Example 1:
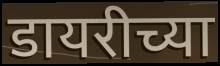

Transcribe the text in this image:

डायरीच्या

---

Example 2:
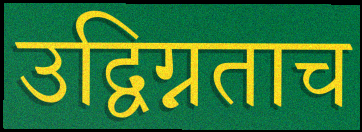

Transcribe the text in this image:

उद्विग्नताच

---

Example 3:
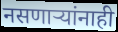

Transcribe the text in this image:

नसणार्‍यांनाही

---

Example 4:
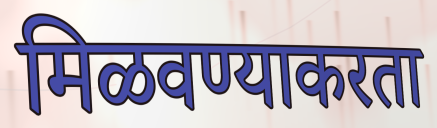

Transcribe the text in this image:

मिळवण्याकरता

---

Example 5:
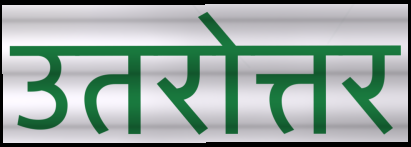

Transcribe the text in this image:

उतरोत्तर